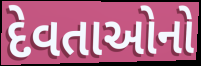
દેવતાઓનો